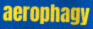
aerophagy